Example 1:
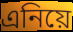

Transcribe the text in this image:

এনিয়ে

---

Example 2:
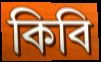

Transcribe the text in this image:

কিবি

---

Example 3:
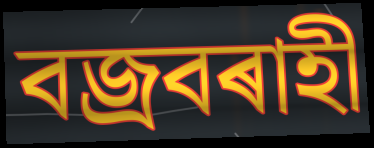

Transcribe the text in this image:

বজ্ৰবৰাহী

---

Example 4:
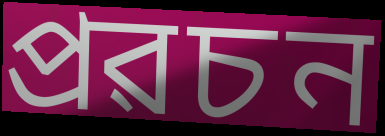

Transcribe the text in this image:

প্ৰৱচন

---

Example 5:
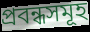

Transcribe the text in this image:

প্ৰবন্ধসমূহ